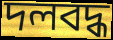
দলবদ্ধ